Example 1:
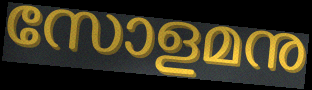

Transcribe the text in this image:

സോളമനു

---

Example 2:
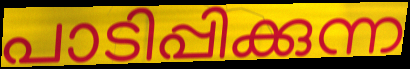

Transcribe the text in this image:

പാടിപ്പിക്കുന്ന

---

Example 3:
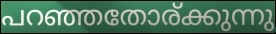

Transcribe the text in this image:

പറഞ്ഞതോര്ക്കുന്നു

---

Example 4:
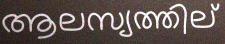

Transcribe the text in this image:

ആലസ്യത്തില്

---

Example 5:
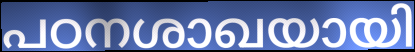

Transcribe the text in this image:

പഠനശാഖയായി